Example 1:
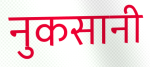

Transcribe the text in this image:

नुकसानी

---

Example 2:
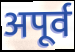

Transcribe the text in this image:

अपूर्व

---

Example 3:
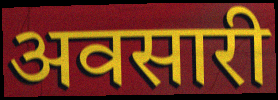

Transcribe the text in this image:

अवसारी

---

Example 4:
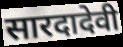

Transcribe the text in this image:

सारदादेवी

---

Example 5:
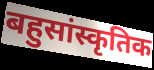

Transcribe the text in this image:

बहुसांस्कृतिक